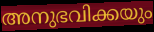
അനുഭവിക്കയും